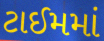
ટાઈમમાં